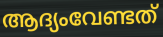
ആദ്യംവേണ്ടത്